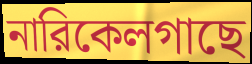
নারিকেলগাছে